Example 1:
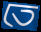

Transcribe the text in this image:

তে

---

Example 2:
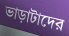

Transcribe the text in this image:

ভাড়াটাদের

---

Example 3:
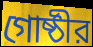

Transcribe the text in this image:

গোষ্ঠীর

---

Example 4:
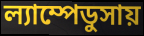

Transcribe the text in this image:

ল্যাম্পেডুসায়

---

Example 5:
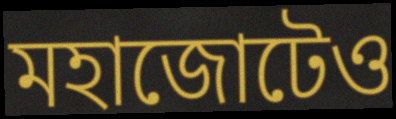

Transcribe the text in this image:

মহাজোটেও